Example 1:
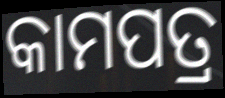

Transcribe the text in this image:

କାମପତ୍ର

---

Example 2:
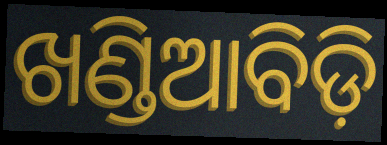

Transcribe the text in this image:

ଖଣ୍ଡିଆବିଡ଼ି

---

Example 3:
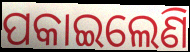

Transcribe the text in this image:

ପକାଇଲେଣି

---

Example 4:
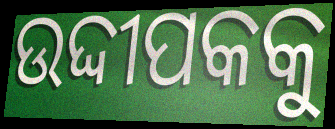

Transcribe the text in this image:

ଉଦ୍ଦୀପକକୁ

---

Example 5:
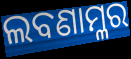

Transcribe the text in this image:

ଲବଣାମ୍ଳର